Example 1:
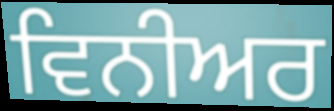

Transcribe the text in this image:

ਵਿਨੀਅਰ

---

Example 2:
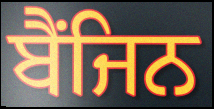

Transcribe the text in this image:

ਬੈਂਜਿਨ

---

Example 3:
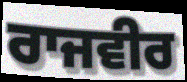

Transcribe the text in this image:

ਰਾਜਵੀਰ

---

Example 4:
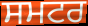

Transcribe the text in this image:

ਸਮਟਰ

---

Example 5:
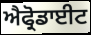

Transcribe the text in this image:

ਐਫ੍ਰੋਡਾਈਟ